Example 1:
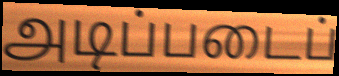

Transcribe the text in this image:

அடிப்படைப்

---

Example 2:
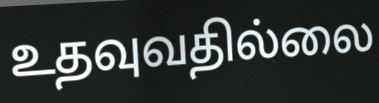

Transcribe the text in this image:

உதவுவதில்லை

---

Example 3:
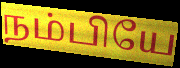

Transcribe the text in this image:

நம்பியே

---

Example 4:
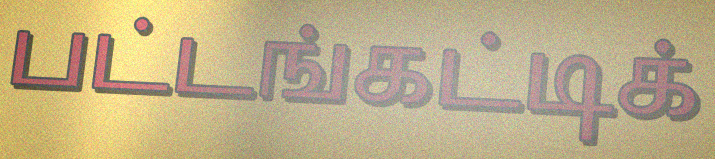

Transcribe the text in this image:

பட்டங்கட்டிக்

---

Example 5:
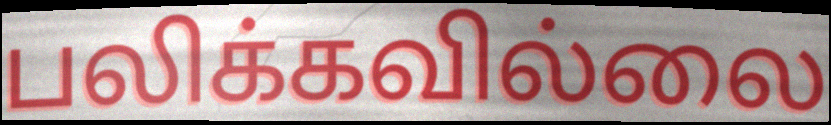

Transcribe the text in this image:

பலிக்கவில்லை